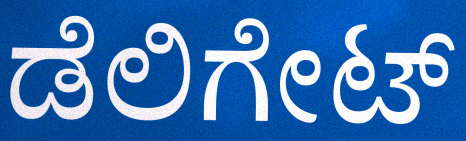
ಡೆಲಿಗೇಟ್